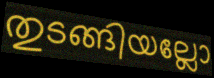
തുടങ്ങിയല്ലോ